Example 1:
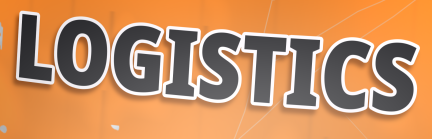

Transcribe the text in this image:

LOGISTICS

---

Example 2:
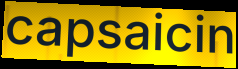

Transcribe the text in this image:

capsaicin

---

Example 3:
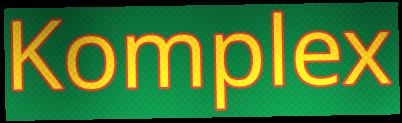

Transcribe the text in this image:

Komplex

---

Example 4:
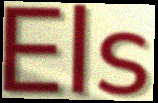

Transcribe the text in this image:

Els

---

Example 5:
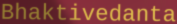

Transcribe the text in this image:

Bhaktivedanta